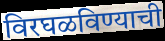
विरघळविण्याची